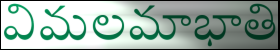
విమలమాభాతి